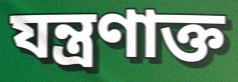
যন্ত্রণাক্ত